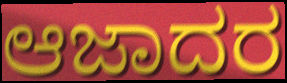
ಆಜಾದರ